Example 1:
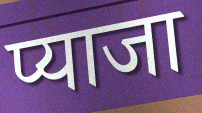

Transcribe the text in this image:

प्याजा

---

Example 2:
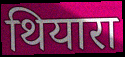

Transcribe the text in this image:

थियारा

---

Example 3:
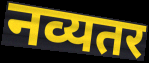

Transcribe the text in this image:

नव्यतर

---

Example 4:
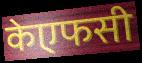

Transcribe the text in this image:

केएफसी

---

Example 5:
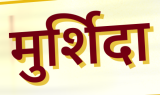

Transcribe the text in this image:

मुर्शिदा